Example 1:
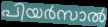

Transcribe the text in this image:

പിയർസാൽ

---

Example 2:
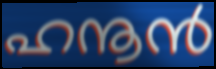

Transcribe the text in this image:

ഹനൂൻ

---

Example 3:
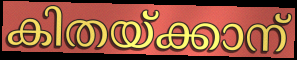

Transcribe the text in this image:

കിതയ്ക്കാന്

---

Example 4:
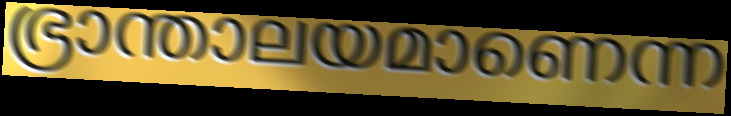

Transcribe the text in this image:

ഭ്രാന്താലയമാണെന്ന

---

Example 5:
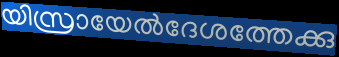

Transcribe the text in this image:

യിസ്രായേൽദേശത്തേക്കു